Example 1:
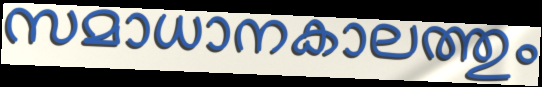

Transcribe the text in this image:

സമാധാനകാലത്തും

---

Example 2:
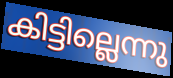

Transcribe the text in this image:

കിട്ടില്ലെന്നു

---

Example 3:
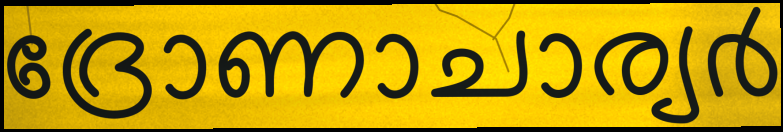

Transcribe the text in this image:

ദ്രോണാചാര്യർ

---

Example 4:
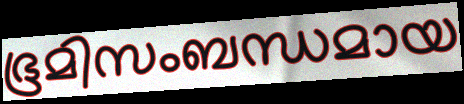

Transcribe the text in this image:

ഭൂമിസംബന്ധമായ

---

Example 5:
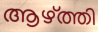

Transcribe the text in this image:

ആഴ്ത്തി